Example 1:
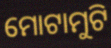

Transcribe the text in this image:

ମୋଟାମୁଟି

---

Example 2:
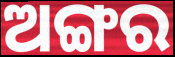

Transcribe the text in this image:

ଅଙ୍ଗର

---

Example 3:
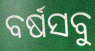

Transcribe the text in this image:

ବର୍ଷସବୁ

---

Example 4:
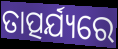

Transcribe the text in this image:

ତାତ୍ପର୍ଯ୍ୟରେ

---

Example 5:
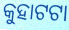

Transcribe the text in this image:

କୁହାଟଟା